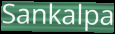
Sankalpa